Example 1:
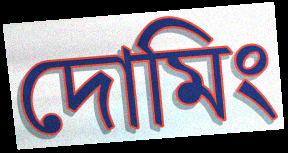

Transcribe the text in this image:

দোমিং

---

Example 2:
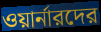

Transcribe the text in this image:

ওয়ার্নারদের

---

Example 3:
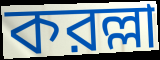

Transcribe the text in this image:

করল্লা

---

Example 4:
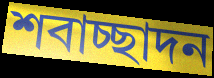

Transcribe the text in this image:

শবাচ্ছাদন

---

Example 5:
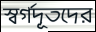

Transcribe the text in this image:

স্বর্গদূতদের